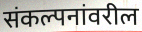
संकल्पनांवरील